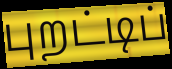
புறட்டிப்